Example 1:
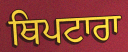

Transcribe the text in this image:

ਥਿਪਟਾਰਾ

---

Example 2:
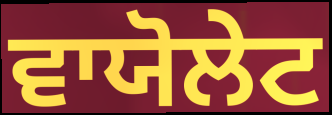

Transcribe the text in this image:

ਵਾਯੋਲੇਟ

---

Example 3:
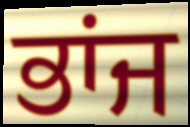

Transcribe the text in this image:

ਭਾਂਜ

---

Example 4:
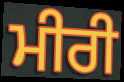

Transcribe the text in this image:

ਮੀਰੀ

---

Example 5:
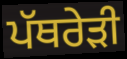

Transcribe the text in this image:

ਪੱਥਰੇੜੀ